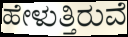
ಹೇಳುತ್ತಿರುವೆ